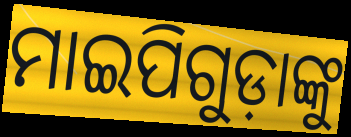
ମାଇପିଗୁଡ଼ାଙ୍କୁ